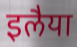
इलैया